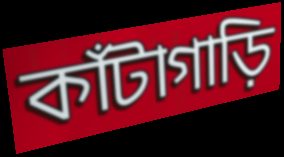
কাঁটাগাড়ি